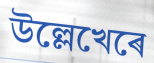
উল্লেখেৰে